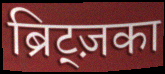
ब्रिट्ज़का